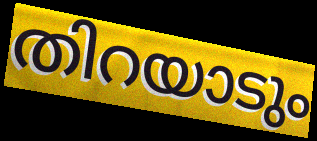
തിറയാടും